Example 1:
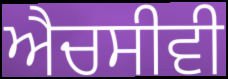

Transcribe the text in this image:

ਐਚਸੀਵੀ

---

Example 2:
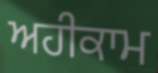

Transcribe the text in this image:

ਅਹੀਕਾਮ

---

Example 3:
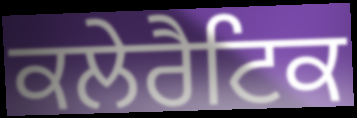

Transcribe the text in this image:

ਕਲੇਰੈਟਿਕ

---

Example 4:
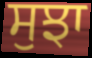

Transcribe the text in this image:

ਸੁਝਾ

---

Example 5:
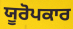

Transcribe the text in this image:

ਯੂਰੋਪਕਾਰ